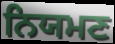
ਨਿਯਮਣ